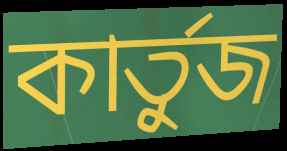
কার্তুজ